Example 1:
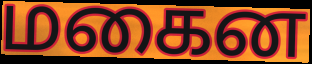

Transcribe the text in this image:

மகைன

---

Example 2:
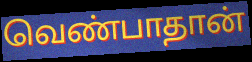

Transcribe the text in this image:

வெண்பாதான்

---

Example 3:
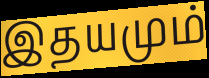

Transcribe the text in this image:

இதயமும்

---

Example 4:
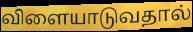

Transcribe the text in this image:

விளையாடுவதால்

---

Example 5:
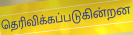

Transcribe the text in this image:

தெரிவிக்கப்படுகின்றன